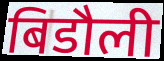
बिडौली